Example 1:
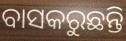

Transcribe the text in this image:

ବାସକରୁଛନ୍ତି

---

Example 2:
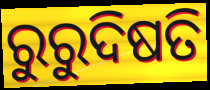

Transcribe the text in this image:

ରୁରୁଦିଷତି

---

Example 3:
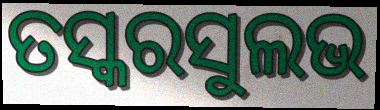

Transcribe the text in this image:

ତସ୍କରସୁଲଭ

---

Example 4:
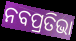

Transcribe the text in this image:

ନବପ୍ରତିଭା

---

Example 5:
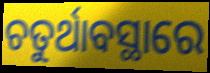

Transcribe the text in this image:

ଚତୁର୍ଥାବସ୍ଥାରେ